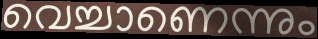
വെച്ചാണെന്നും